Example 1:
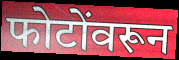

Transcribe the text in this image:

फोटोंवरून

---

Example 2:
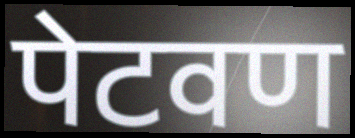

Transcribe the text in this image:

पेटवण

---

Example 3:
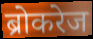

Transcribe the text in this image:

ब्रोकरेज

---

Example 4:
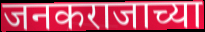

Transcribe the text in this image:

जनकराजाच्या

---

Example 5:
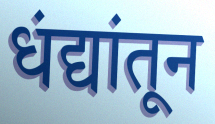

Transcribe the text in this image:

धंद्यांतून